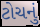
ટોચનું